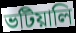
ভটিয়ালি